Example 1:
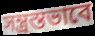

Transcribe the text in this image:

সন্ত্রস্তভাবে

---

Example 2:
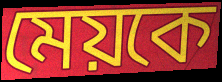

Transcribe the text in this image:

মেয়কে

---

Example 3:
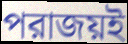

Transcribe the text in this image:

পরাজয়ই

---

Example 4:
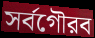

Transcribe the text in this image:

সর্বগৌরব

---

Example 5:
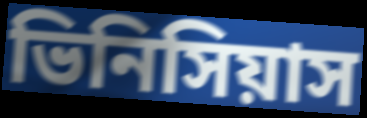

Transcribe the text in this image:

ভিনিসিয়াস